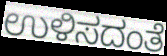
ಉಳಿಸದಂತೆ